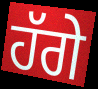
ਹੱਗੇ